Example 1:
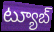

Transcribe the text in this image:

ట్యూబ్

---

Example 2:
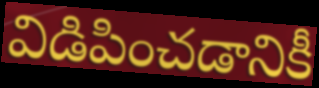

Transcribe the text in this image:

విడిపించడానికీ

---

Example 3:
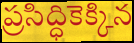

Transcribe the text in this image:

ప్రసిద్ధికెక్కిన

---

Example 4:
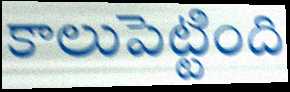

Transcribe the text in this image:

కాలుపెట్టింది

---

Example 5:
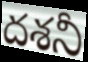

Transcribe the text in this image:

దశనీ